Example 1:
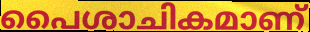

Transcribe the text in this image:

പൈശാചികമാണ്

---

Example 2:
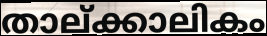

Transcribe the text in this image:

താല്ക്കാലികം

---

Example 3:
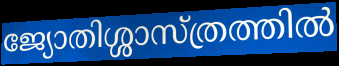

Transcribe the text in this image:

ജ്യോതിശ്ശാസ്ത്രത്തിൽ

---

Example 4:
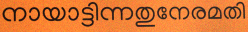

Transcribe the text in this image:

നായാട്ടിന്നതുനേരമതി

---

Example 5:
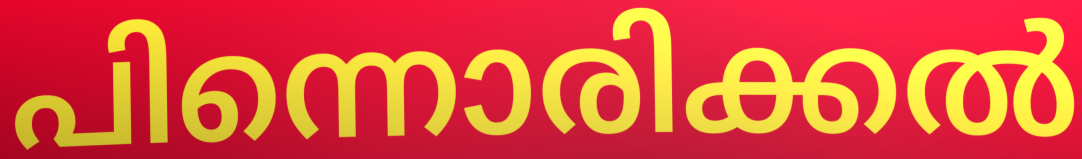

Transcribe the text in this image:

പിന്നൊരിക്കൽ